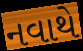
નવાથે